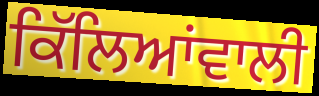
ਕਿੱਲਿਆਂਵਾਲੀ